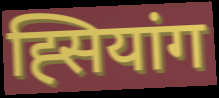
ह्सियांग